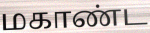
மகாண்ட